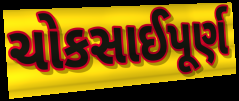
ચોકસાઈપૂર્ણ